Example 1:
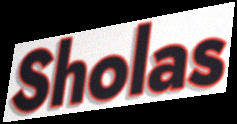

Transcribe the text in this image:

Sholas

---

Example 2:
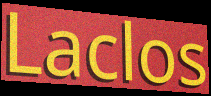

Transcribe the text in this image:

Laclos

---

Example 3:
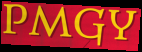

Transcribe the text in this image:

PMGY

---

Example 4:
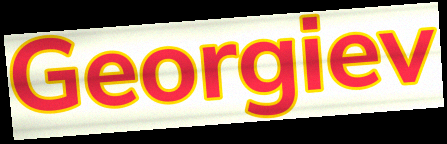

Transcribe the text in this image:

Georgiev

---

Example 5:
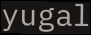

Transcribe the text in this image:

yugal